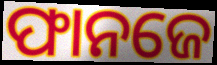
ଫାନଜେ